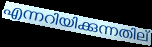
എന്നറിയിക്കുന്നതില്